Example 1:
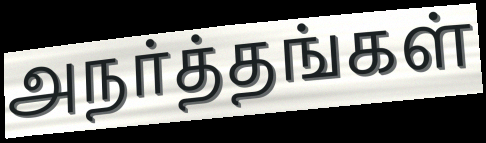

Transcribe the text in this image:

அநர்த்தங்கள்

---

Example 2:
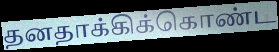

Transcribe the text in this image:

தனதாக்கிக்கொண்ட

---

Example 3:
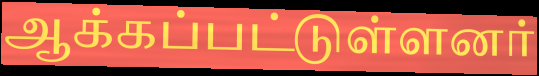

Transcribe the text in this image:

ஆக்கப்பட்டுள்ளனர்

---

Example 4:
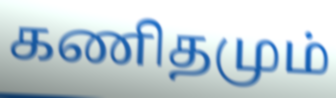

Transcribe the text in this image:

கணிதமும்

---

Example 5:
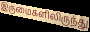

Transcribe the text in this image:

இருமைகளிலிருந்து